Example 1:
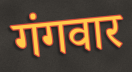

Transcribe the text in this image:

गंगवार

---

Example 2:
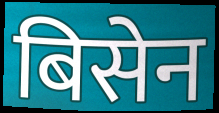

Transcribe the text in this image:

बिसेन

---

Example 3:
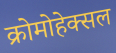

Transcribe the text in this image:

क्रोमोहेक्सल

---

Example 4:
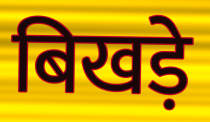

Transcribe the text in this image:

बिखड़े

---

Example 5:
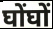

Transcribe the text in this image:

घोंघों